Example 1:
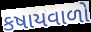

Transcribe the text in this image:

કષાયવાળો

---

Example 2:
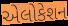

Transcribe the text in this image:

એલોકેશન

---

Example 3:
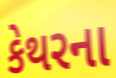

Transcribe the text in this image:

કેથરના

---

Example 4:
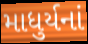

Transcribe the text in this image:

માધુર્યનાં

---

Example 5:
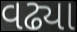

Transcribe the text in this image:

વઢ્યા